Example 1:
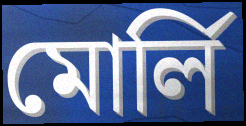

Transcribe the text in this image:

মোর্লি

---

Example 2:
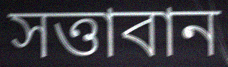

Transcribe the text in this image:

সত্তাবান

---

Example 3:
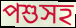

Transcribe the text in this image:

পশুসহ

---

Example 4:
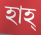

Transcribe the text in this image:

হাহ্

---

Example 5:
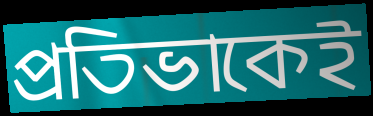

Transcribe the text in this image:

প্রতিভাকেই